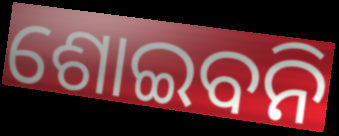
ଶୋଇବନି